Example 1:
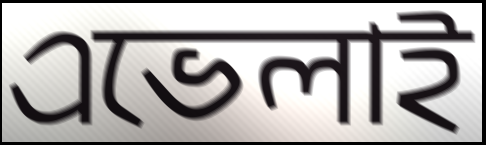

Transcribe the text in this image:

এভেলাই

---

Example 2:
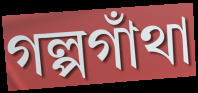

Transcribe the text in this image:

গল্পগাঁথা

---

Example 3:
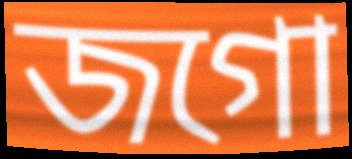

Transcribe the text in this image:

জগো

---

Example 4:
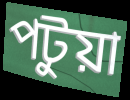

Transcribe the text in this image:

পটুয়া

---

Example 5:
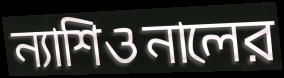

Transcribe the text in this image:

ন্যাশিওনালের